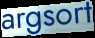
argsort